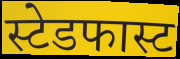
स्टेडफास्ट